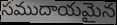
సముదాయమైన